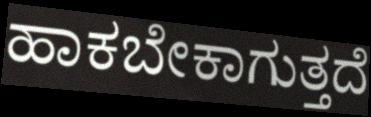
ಹಾಕಬೇಕಾಗುತ್ತದೆ